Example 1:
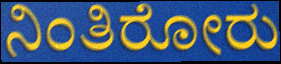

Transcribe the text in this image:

ನಿಂತಿರೋರು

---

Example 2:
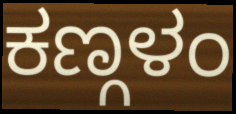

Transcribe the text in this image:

ಕಣ್ಗಳಂ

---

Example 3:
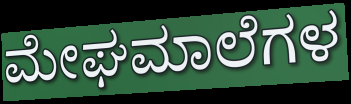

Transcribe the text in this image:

ಮೇಘಮಾಲೆಗಳ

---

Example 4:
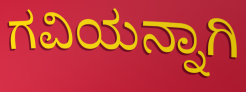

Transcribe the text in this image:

ಗವಿಯನ್ನಾಗಿ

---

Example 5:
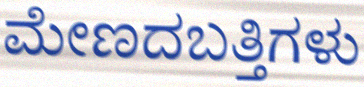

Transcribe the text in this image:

ಮೇಣದಬತ್ತಿಗಳು